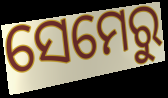
ସେମେରୁ